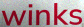
winks